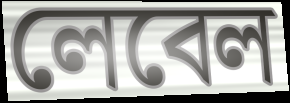
লেবেল